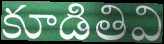
కూడితివి